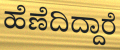
ಹೆಣೆದಿದ್ದಾರೆ